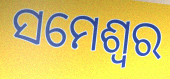
ସମେଶ୍ୱର